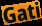
Gati